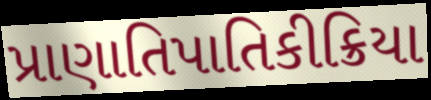
પ્રાણાતિપાતિકીક્રિયા